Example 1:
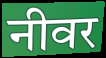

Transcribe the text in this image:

नीवर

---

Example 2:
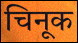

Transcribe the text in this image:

चिनूक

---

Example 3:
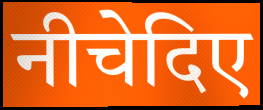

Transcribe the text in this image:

नीचेदिए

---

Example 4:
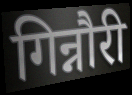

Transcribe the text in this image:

गिन्नौरी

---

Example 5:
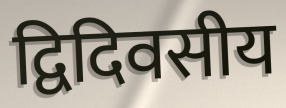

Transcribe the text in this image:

द्विदिवसीय